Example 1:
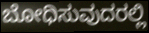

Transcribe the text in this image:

ಬೋಧಿಸುವುದರಲ್ಲಿ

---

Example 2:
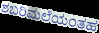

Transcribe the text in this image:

ಶಬರಿಮಲೆಯಂತಹ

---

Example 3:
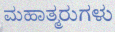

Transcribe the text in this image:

ಮಹಾತ್ಮರುಗಳು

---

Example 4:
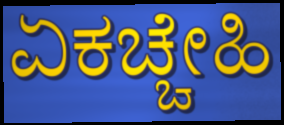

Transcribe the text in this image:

ಏಕಚ್ಚೇಹಿ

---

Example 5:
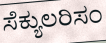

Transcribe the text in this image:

ಸೆಕ್ಯುಲರಿಸಂ